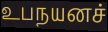
உபநயனச்